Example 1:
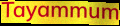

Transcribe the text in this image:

Tayammum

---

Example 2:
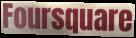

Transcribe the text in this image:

Foursquare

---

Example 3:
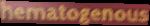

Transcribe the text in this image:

hematogenous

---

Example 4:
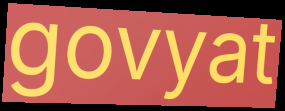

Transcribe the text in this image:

govyat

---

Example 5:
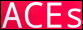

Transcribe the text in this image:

ACEs